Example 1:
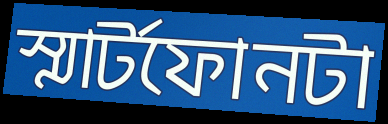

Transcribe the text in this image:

স্মার্টফোনটা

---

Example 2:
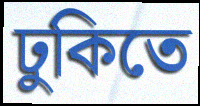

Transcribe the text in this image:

ঢুকিতে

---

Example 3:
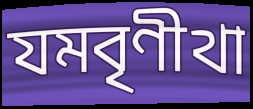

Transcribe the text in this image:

যমবৃণীথা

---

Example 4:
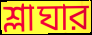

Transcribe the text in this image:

শ্লাঘার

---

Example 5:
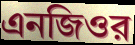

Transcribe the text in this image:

এনজিওর